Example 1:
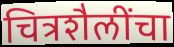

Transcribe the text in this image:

चित्रशैलींचा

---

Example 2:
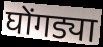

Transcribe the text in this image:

घोंगड्या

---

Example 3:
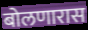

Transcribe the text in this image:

बोलणारास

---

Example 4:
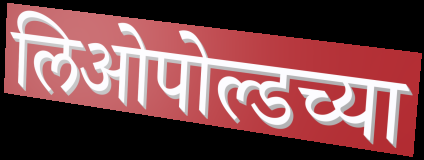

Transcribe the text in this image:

लिओपोल्डच्या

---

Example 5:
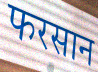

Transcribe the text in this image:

फरसान